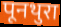
पूनथुरा